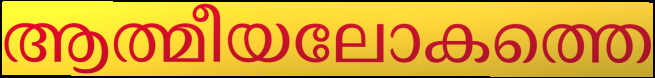
ആത്മീയലോകത്തെ